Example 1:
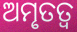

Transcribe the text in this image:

ଅମୃତତ୍ବ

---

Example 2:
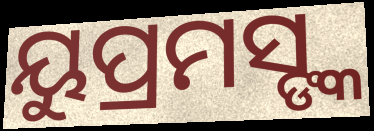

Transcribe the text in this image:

ୟୁପ୍ରମସ୍ଙ୍କ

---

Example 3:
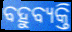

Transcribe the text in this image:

ବହୁବ୍ୟକ୍ତି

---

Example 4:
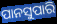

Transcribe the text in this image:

ପାନସୁପାରି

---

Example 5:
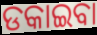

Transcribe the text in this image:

ଡକାଇବା